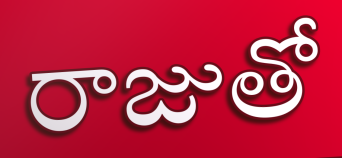
రాజుతో